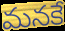
మనకే